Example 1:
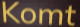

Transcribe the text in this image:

Komt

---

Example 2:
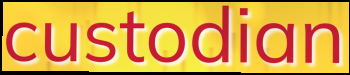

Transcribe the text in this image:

custodian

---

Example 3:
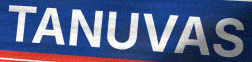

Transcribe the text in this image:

TANUVAS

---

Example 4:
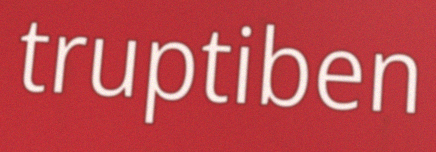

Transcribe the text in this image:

truptiben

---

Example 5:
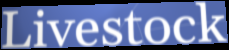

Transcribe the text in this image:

Livestock